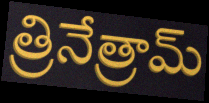
త్రినేత్రామ్